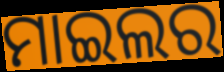
ମାଇଲର